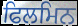
ਫਿਲਮਿਨ